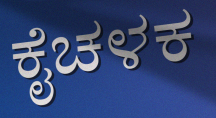
ಕೈಚಳಕ